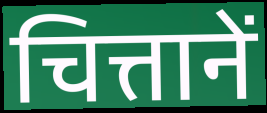
चित्तानें